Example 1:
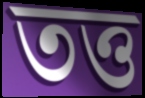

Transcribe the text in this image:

তত্ত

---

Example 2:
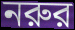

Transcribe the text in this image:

নরুর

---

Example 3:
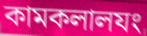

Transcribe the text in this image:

কামকলালযং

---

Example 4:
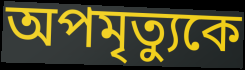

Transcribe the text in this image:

অপমৃত্যুকে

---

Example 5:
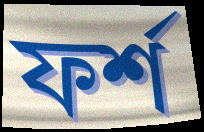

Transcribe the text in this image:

ফর্শ